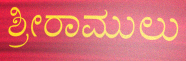
ಶ್ರೀರಾಮುಲು